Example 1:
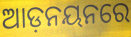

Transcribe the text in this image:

ଆଡ଼ନୟନରେ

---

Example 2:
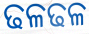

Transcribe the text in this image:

ଢଳଢଳ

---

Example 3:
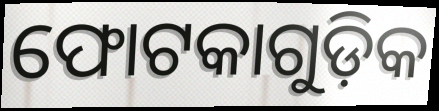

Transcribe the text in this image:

ଫୋଟକାଗୁଡ଼ିକ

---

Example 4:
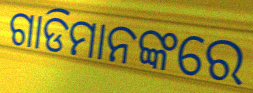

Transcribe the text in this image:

ଗାଡିମାନଙ୍କରେ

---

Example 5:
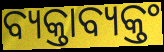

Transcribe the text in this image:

ବ୍ୟକ୍ତାବ୍ୟକ୍ତଂ